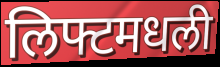
लिफ्टमधली